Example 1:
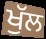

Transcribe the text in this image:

ਖੁੱਲ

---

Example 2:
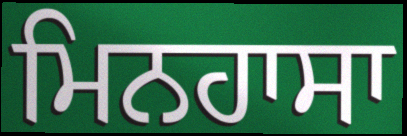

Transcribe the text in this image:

ਮਿਨਹਾਸਾ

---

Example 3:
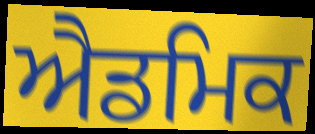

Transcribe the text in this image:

ਐਡਮਿਕ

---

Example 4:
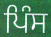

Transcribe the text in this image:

ਪਿੰਸ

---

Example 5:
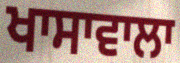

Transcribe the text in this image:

ਖਾਸਾਵਾਲਾ